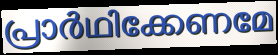
പ്രാർഥിക്കേണമേ